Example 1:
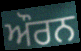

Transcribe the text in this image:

ਔਰਨ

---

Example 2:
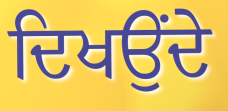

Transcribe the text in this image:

ਦਿਖਉਂਦੇ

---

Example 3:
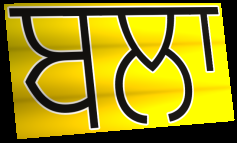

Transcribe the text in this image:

ਬਲਾ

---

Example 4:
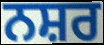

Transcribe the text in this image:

ਨਸ਼ਰ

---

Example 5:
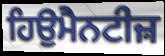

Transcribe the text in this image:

ਹਿਉਮੈਨਟੀਜ਼